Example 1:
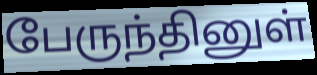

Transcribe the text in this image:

பேருந்தினுள்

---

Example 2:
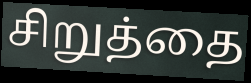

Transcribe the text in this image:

சிறுத்தை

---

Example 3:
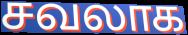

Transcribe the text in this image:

சவலாக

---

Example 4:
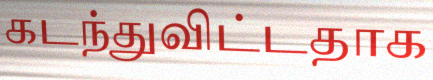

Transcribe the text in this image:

கடந்துவிட்டதாக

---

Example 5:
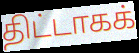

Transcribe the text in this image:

திட்டாகக்